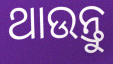
ଥାଉନ୍ତୁ